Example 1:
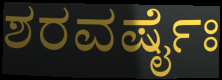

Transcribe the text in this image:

ಶರವರ್ಷೈಃ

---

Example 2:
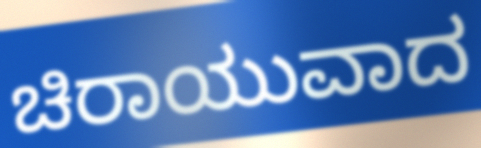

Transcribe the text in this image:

ಚಿರಾಯುವಾದ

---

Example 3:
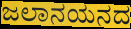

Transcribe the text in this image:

ಜಲಾನಯನದ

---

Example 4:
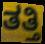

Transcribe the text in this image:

ತತ್ತಿ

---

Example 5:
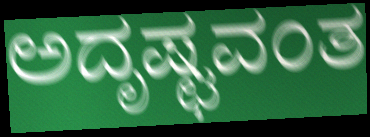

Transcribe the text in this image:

ಅದೃಷ್ಟವಂತ